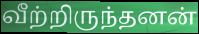
வீற்றிருந்தனன்